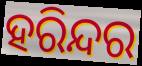
ହରିନ୍ଦର